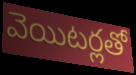
వెయిటర్లతో